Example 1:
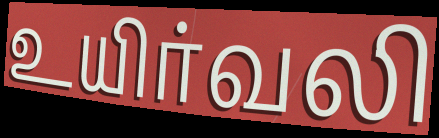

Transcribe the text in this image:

உயிர்வலி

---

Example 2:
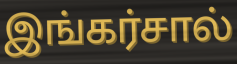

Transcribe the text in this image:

இங்கர்சால்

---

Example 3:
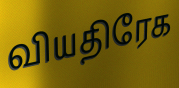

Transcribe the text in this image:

வியதிரேக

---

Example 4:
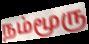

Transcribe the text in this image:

நம்மூரு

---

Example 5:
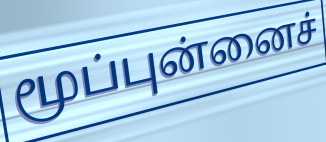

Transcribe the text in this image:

மூப்புன்னைச்